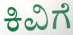
ಕಿವಿಗೆ